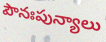
పౌనఃపున్యాలు